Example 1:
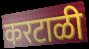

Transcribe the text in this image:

करटाळी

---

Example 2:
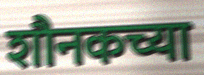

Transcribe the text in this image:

शौनकच्या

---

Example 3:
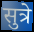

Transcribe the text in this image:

सुत्रे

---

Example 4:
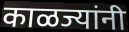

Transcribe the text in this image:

काळज्यांनी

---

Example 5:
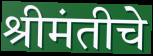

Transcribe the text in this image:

श्रीमंतीचे